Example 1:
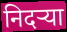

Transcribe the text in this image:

निदऱ्या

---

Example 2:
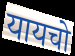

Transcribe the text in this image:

यायचो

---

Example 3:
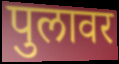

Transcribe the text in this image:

पुलावर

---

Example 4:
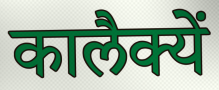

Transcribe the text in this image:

कालैक्यें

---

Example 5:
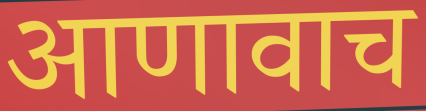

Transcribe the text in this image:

आणावाच